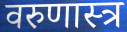
वरुणास्त्र